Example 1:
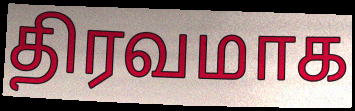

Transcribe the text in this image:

திரவமாக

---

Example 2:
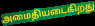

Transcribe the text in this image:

அமைதியடைகிறது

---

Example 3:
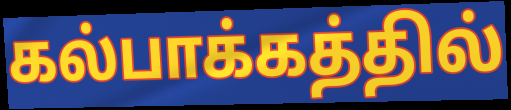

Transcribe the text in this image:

கல்பாக்கத்தில்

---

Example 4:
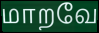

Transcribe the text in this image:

மாறவே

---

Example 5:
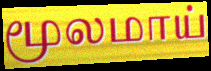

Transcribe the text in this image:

மூலமாய்